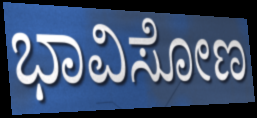
ಭಾವಿಸೋಣ